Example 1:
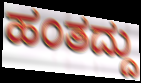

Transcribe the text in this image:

ಹಂತದ್ದು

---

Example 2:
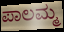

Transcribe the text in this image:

ಪಾಲಮ್ಮ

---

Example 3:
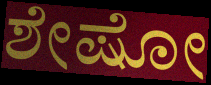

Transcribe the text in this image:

ಶೇಷೋ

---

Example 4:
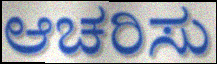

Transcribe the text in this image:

ಆಚರಿಸು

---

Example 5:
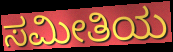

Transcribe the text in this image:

ಸಮೀತಿಯ